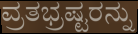
ವ್ರತಭ್ರಷ್ಟರನ್ನು